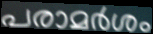
പരാമർശം